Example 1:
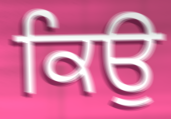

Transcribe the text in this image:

ਕਿਉ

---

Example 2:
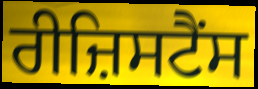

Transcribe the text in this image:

ਰੀਜ਼ਿਸਟੈਂਸ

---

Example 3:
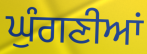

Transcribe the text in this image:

ਘੁੰਗਣੀਆਂ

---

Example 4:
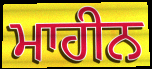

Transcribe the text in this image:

ਮਾਹੀਨ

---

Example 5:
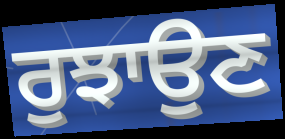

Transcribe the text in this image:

ਰੁਝਾਉਣ